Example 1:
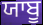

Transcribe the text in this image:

ਯਾਬੂ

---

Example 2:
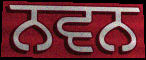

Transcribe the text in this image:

ਨਵਨ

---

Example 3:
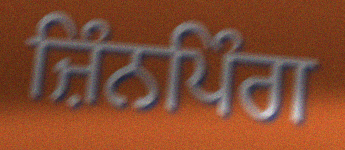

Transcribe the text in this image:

ਜ਼ਿੰਨਪਿੰਗ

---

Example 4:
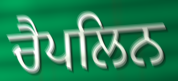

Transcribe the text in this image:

ਚੈਪਲਿਨ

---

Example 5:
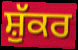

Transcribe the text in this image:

ਸ਼ੁੱਕਰ